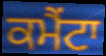
ਕਮੈਂਟਾ